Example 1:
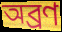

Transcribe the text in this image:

অব্রণ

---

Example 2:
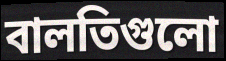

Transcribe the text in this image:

বালতিগুলো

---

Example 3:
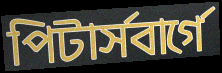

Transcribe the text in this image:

পিটার্সবার্গে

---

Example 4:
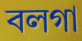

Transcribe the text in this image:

বলগা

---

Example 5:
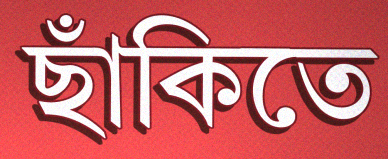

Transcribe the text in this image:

ছাঁকিতে